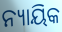
ନ୍ୟାୟିକ